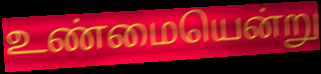
உண்மையென்று